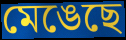
মেঙেছে